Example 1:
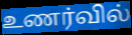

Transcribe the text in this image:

உணர்வில்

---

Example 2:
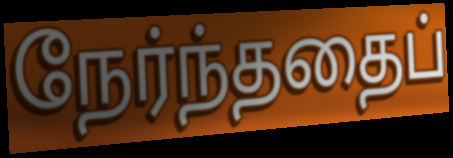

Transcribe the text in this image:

நேர்ந்ததைப்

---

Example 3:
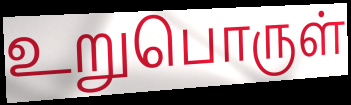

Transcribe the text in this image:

உறுபொருள்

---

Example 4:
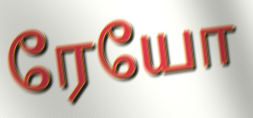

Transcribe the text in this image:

ரேயோ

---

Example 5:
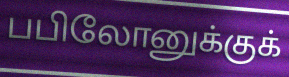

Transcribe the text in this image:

பபிலோனுக்குக்